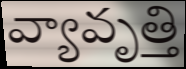
వ్యావృత్తి